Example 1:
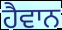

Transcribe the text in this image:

ਹੈਵਾਨ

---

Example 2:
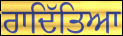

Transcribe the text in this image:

ਰਾਦਿੱਤਿਆ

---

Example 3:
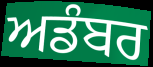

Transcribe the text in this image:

ਅਡੰਬਰ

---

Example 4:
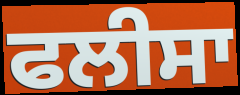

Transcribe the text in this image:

ਫਲੀਸਾ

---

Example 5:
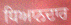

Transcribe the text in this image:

ਧਿਆਨਦਾਰ